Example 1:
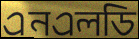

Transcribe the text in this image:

এনএলডি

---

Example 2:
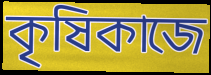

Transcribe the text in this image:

কৃষিকাজে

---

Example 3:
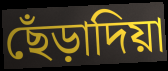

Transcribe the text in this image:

ছেঁড়াদিয়া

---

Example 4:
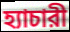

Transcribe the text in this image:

হ্যাচারী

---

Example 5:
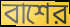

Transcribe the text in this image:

বাশের